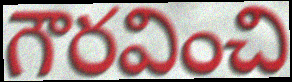
గౌరవించి